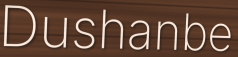
Dushanbe